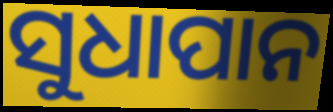
ସୁଧାପାନ